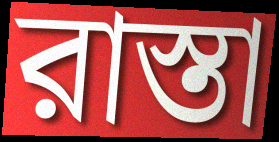
রাস্তা